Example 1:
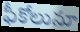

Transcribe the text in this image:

ఫీకోలునూ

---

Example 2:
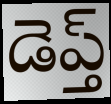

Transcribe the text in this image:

డెప్త్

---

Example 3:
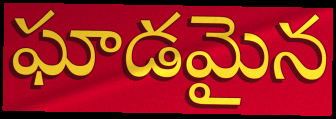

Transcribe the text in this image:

ఘాడమైన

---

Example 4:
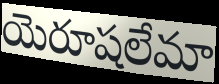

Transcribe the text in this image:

యెరూషలేమా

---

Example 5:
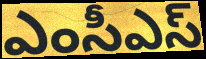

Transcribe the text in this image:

ఎంసీఎస్